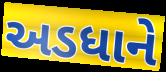
અડધાને